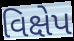
વિક્ષેપ